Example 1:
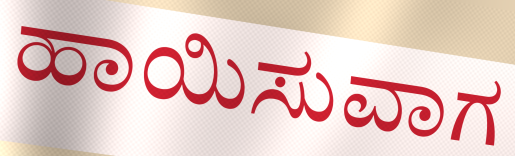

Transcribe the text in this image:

ಹಾಯಿಸುವಾಗ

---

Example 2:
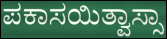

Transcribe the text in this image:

ಪಕಾಸಯಿತ್ವಾಸ್ಸಾ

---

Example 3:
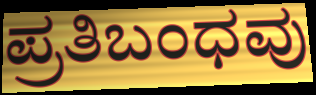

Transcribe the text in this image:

ಪ್ರತಿಬಂಧವು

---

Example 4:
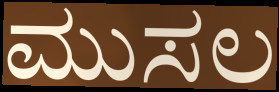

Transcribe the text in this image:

ಮುಸಲ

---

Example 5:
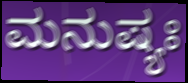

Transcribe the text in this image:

ಮನುಷ್ಯಃ